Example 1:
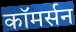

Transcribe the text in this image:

कॉमर्सन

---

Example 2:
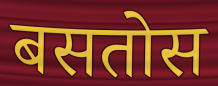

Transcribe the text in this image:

बसतोस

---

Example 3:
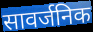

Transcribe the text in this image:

सावर्जनिक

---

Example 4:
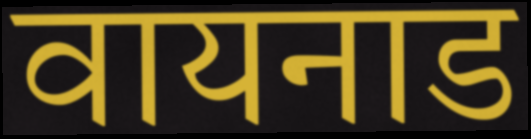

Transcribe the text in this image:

वायनाड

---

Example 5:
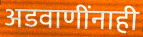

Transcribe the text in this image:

अडवाणींनाही